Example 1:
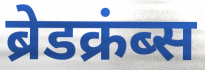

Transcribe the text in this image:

ब्रेडक्रंब्स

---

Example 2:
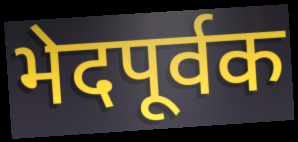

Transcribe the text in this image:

भेदपूर्वक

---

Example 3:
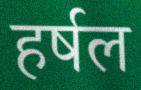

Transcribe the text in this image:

हर्षल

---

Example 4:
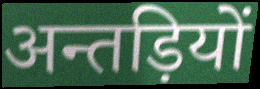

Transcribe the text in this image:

अन्तड़ियों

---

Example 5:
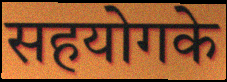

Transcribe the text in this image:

सहयोगके